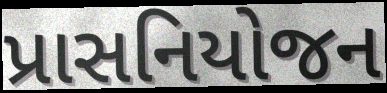
પ્રાસનિયોજન